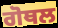
ਗੋਥਲ